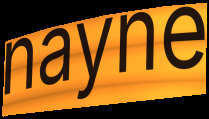
nayne